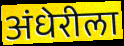
अंधेरीला